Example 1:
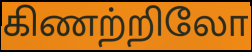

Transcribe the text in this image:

கிணற்றிலோ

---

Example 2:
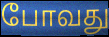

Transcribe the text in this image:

போவது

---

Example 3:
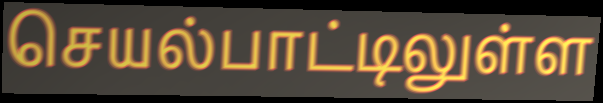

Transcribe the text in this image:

செயல்பாட்டிலுள்ள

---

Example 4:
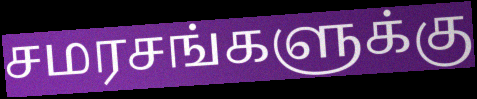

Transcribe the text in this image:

சமரசங்களுக்கு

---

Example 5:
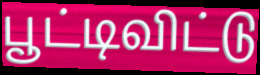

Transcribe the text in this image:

பூட்டிவிட்டு